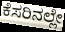
ಕೆಸರಿನಲ್ಲೇ